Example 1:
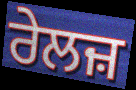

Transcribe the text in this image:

ਰੇਲਜ਼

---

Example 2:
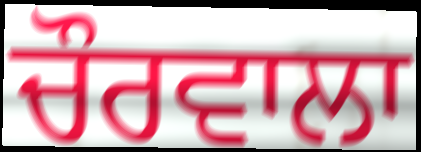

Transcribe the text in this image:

ਚੌਰਵਾਲਾ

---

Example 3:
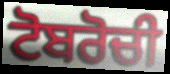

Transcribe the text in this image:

ਟੋਬਰੋਚੀ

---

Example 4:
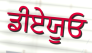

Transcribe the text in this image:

ਡੀਏਯੂਓ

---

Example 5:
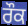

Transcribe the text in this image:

ਰੌਕ